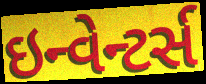
ઇન્વેન્ટર્સ